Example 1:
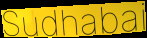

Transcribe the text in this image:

Sudhabai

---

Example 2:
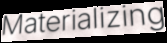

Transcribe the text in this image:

Materializing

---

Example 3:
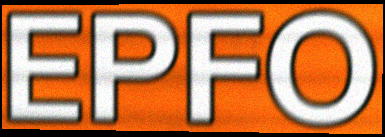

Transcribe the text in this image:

EPFO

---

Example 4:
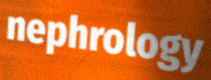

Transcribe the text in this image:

nephrology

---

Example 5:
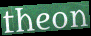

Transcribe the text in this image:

theon